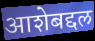
आशेबद्दल